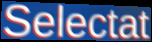
Selectat